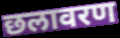
छलावरण